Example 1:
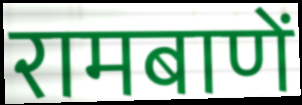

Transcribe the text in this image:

रामबाणें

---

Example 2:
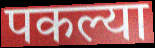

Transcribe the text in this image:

पकल्या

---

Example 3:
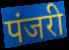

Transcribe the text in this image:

पंजरी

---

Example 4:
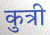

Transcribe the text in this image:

कुत्री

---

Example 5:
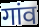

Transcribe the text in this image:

गांव